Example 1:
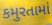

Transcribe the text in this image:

કમુરતામાં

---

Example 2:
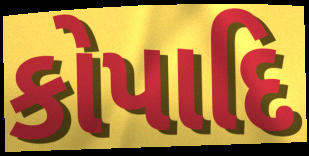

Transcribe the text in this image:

કોપાદિ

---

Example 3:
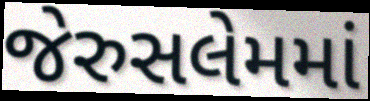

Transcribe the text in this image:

જેરુસલેમમાં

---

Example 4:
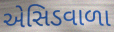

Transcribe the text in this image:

એસિડવાળા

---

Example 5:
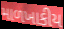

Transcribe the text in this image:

માળખાકીય